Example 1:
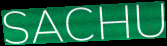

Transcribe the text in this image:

SACHU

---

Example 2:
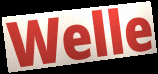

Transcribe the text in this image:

Welle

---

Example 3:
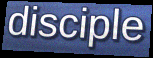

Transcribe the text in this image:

disciple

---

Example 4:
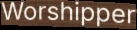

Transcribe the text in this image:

Worshipper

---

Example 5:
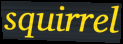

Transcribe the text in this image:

squirrel